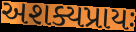
અશક્યપ્રાયઃ